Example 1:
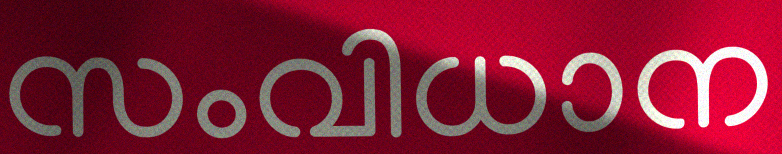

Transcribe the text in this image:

സംവിധാന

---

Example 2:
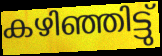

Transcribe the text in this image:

കഴിഞ്ഞിട്ടു്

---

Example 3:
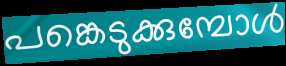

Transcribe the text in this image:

പങ്കെടുക്കുമ്പോൾ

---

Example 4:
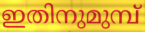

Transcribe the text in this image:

ഇതിനുമുമ്പ്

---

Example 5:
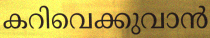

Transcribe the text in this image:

കറിവെക്കുവാൻ